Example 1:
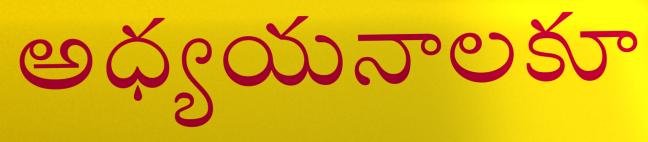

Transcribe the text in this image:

అధ్యయనాలకూ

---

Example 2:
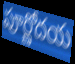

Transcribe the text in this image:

పూర్ణోదయ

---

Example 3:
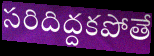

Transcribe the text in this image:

సరిదిద్దకపోతే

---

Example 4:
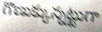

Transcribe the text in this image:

గొణుక్కున్నట్టుగా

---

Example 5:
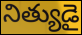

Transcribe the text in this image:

నిత్యుడై